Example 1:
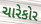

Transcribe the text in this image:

ચારેકોર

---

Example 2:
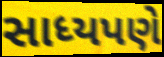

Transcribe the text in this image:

સાધ્યપણે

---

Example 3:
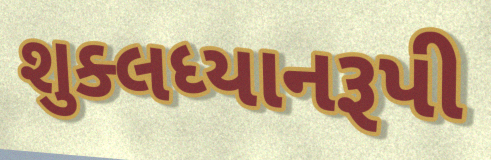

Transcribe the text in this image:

શુક્લધ્યાનરૂપી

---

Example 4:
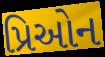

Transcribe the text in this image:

પ્રિઓન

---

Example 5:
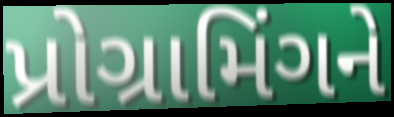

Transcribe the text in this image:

પ્રોગ્રામિંગને